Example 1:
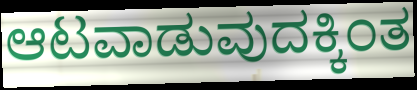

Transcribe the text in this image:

ಆಟವಾಡುವುದಕ್ಕಿಂತ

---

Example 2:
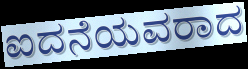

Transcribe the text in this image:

ಐದನೆಯವರಾದ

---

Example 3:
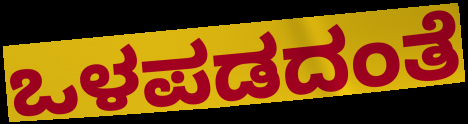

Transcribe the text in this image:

ಒಳಪಡದಂತೆ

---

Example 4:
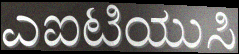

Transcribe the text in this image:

ಎಐಟಿಯುಸಿ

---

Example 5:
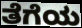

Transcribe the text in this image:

ತೆಗೆಯ